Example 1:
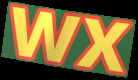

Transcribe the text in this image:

wx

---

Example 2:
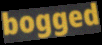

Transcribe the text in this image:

bogged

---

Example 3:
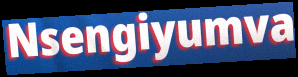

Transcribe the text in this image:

Nsengiyumva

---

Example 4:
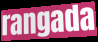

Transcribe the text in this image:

rangada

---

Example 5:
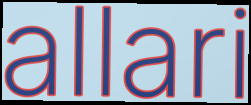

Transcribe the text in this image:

allari